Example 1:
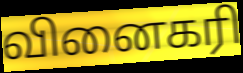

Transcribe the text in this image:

வினைகரி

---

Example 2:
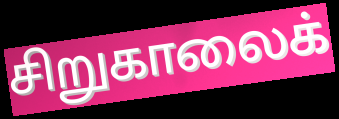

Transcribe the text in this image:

சிறுகாலைக்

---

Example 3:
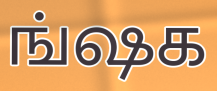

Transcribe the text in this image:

ங்ஷக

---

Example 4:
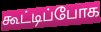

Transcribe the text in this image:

கூட்டிப்போக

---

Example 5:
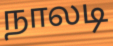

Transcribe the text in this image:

நாலடி